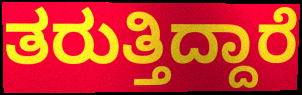
ತರುತ್ತಿದ್ದಾರೆ